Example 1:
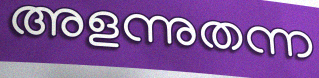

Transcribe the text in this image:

അളന്നുതന്ന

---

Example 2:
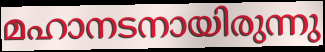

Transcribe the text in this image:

മഹാനടനായിരുന്നു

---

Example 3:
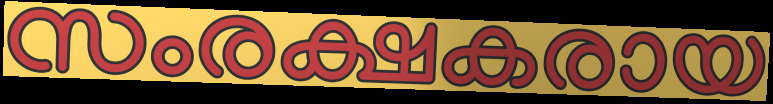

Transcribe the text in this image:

സംരക്ഷകരായ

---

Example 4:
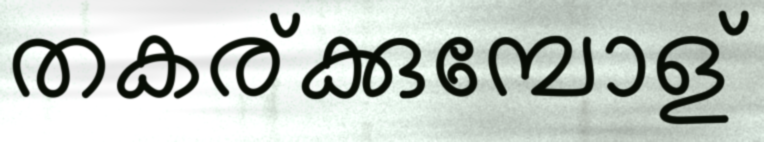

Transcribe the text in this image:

തകര്ക്കുമ്പോള്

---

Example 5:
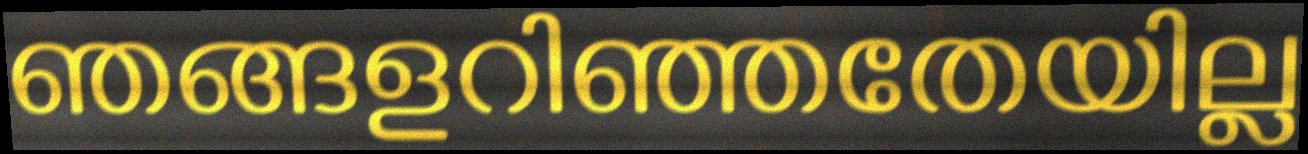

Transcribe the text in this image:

ഞങ്ങളറിഞ്ഞതേയില്ല